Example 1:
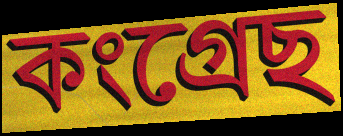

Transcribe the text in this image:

কংগ্ৰেছ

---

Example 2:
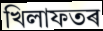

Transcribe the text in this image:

খিলাফতৰ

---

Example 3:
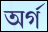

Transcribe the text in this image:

অৰ্গ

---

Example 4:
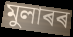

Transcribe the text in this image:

মুলাৰৰ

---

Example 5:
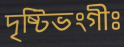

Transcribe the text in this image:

দৃষ্টিভংগীঃ